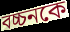
বচ্চনকে